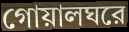
গোয়ালঘরে